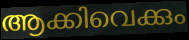
ആക്കിവെക്കും